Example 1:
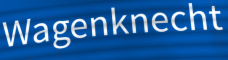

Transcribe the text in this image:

Wagenknecht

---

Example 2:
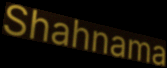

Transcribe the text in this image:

Shahnama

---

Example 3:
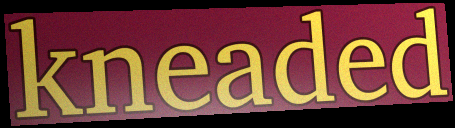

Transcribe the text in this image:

kneaded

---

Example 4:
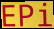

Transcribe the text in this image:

EPi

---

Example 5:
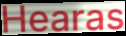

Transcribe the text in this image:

Hearas